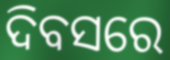
ଦିବସରେ